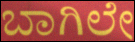
ಬಾಗಿಲೇ